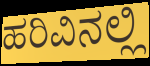
ಹರಿವಿನಲ್ಲಿ